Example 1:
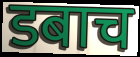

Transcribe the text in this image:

डबाच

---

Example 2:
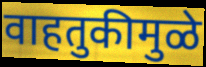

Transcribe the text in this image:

वाहतुकीमुळे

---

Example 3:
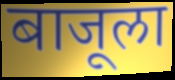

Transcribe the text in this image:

बाजूला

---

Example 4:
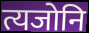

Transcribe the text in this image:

त्यजोनि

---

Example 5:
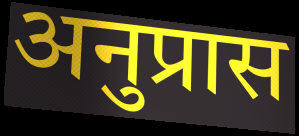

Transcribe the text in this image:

अनुप्रास